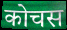
कोचस